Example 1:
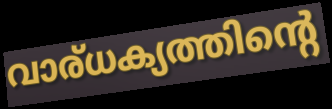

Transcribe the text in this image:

വാര്ധക്യത്തിന്റെ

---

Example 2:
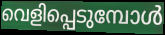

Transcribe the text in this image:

വെളിപ്പെടുമ്പോൾ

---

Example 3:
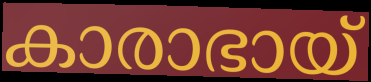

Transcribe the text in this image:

കാരാഭായ്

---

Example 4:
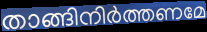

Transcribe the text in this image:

താങ്ങിനിർത്തണമേ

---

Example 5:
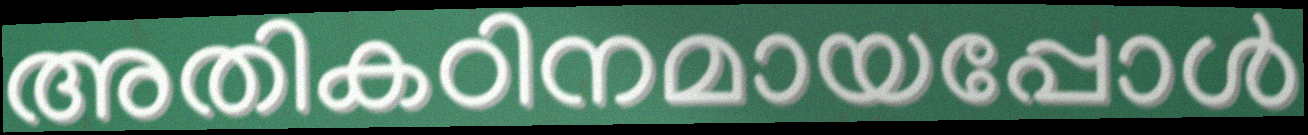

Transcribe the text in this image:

അതികഠിനമായപ്പോൾ